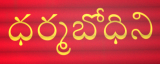
ధర్మబోధిని